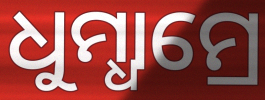
ଧୁମ୍ଧାମ୍ରେ